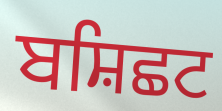
ਬਸ਼ਿਛਟ